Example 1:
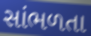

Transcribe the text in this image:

સાંભળતા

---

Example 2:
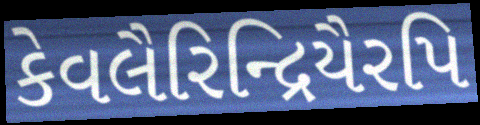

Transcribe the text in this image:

કેવલૈરિન્દ્રિયૈરપિ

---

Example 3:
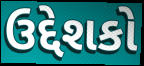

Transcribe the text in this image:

ઉદ્દેશકો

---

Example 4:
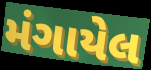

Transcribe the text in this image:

મંગાયેલ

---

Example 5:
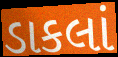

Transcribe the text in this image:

ડાકલાં